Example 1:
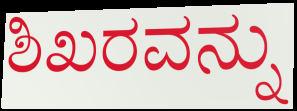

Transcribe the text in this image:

ಶಿಖರವನ್ನು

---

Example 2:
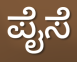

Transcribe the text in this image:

ಪೈಸೆ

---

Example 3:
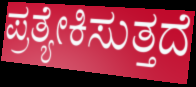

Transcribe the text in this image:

ಪ್ರತ್ಯೇಕಿಸುತ್ತದೆ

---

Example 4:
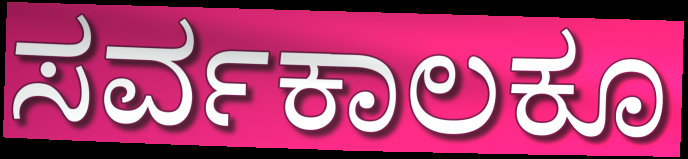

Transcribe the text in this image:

ಸರ್ವಕಾಲಕೂ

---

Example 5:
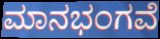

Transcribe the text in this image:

ಮಾನಭಂಗವೆ